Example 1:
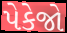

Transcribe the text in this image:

પેકેજો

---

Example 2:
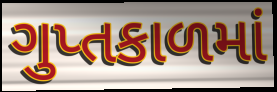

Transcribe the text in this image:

ગુપ્તકાળમાં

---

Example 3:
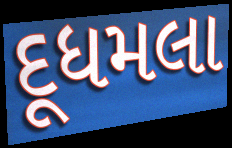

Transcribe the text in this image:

દૂધમલા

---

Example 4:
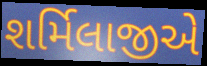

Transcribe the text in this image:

શર્મિલાજીએ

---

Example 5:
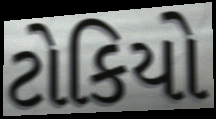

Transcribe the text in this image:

ટોકિયો